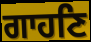
ਗਾਹਣਿ